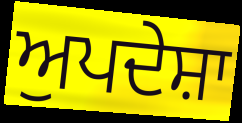
ਅੁਪਦੇਸ਼ਾ